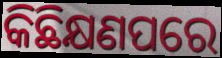
କିଛିକ୍ଷଣପରେ